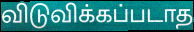
விடுவிக்கப்படாத